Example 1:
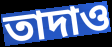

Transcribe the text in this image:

তাদাও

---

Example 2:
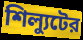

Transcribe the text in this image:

শিল্যুটের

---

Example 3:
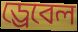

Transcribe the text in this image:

ড্রেবেল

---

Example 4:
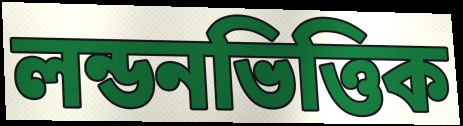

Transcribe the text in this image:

লন্ডনভিত্তিক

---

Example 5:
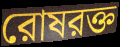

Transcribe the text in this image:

রোষরক্ত